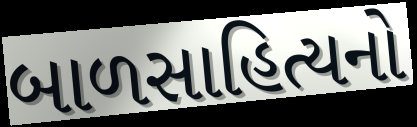
બાળસાહિત્યનો